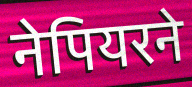
नेपियरने